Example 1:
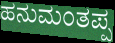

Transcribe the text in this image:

ಹನುಮಂತಪ್ಪ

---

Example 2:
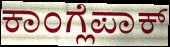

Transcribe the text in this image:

ಕಾಂಗ್ಲೆಪಾಕ್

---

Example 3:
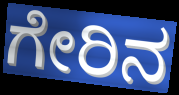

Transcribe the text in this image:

ಗೇರಿನ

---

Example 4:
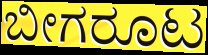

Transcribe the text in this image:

ಬೀಗರೂಟ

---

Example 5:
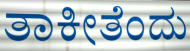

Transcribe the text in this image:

ತಾಕೀತೆಂದು